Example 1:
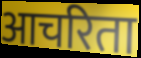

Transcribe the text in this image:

आचरिता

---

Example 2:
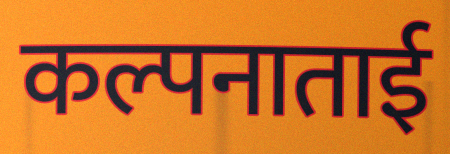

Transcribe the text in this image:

कल्पनाताई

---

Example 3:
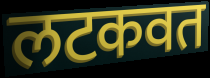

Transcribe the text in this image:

लटकवत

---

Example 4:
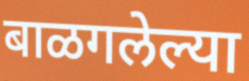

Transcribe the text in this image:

बाळगलेल्या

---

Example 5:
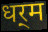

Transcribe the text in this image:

धर्म